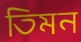
তিমন